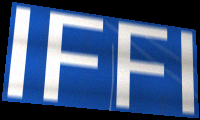
IFFI